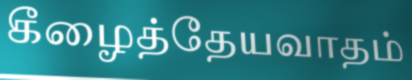
கீழைத்தேயவாதம்